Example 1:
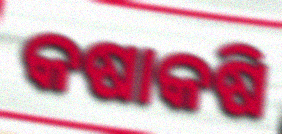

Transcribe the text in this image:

କଷାକଷି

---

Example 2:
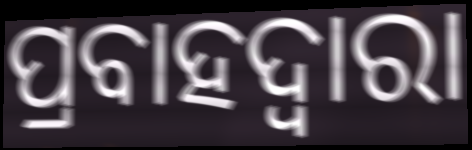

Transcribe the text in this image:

ପ୍ରବାହଦ୍ୱାରା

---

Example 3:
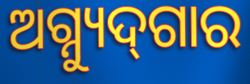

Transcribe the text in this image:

ଅଗ୍ନ୍ୟୁଦ୍‌ଗାର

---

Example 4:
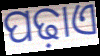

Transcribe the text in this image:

ପଢ଼ାଏ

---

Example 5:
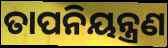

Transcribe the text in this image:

ତାପନିୟନ୍ତ୍ରଣ